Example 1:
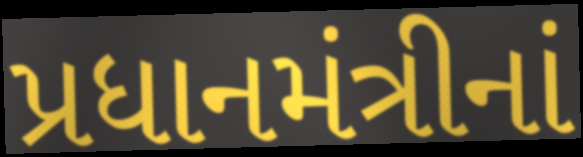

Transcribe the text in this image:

પ્રધાનમંત્રીનાં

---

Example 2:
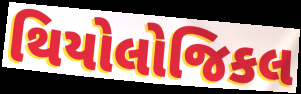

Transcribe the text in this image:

થિયોલોજિકલ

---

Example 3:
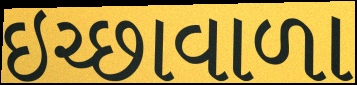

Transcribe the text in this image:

ઇચ્છાવાળા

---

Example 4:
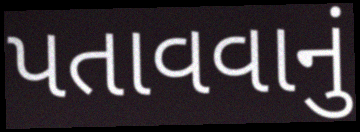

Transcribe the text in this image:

પતાવવાનું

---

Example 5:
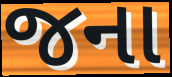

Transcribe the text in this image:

જના